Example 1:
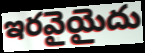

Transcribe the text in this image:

ఇరవైయైదు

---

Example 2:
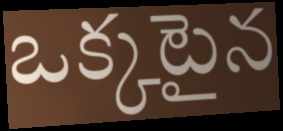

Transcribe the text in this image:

ఒక్కటైన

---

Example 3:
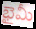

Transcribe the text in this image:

భైమీ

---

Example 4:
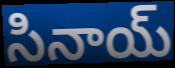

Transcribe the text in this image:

సినాయ్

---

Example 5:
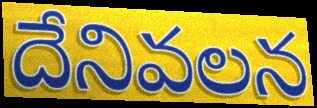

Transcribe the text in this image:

దేనివలన